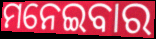
ମନେଇବାର